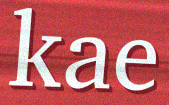
kae